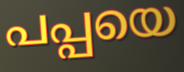
പപ്പയെ